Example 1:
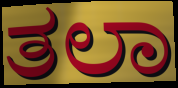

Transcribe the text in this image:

ತಲಾ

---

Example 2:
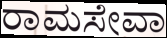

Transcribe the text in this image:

ರಾಮಸೇವಾ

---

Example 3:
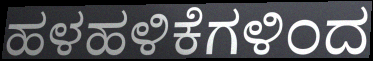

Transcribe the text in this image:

ಹಳಹಳಿಕೆಗಳಿಂದ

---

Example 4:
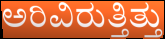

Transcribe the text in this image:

ಅರಿವಿರುತ್ತಿತ್ತು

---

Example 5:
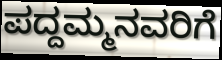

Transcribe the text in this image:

ಪದ್ದಮ್ಮನವರಿಗೆ